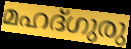
മഹദ്ഗുരു